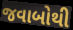
જવાબોથી